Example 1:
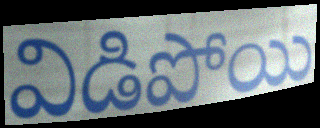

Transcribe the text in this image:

విడిపోయి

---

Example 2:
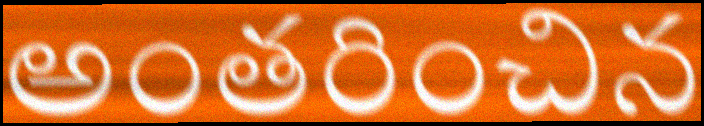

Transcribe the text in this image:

అంతరించిన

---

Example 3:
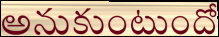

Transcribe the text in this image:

అనుకుంటుందో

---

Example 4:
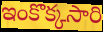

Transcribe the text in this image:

ఇంకొక్కసారి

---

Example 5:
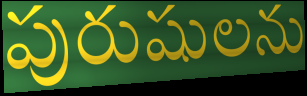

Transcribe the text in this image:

పురుషులను